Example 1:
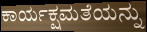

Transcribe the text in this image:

ಕಾರ್ಯಕ್ಷಮತೆಯನ್ನು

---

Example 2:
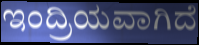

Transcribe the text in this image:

ಇಂದ್ರಿಯವಾಗಿದೆ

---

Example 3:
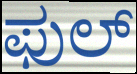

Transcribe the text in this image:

ಫುಲ್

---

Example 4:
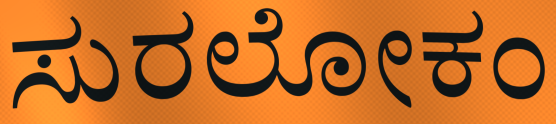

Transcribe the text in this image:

ಸುರಲೋಕಂ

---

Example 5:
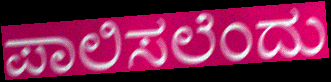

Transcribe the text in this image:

ಪಾಲಿಸಲೆಂದು